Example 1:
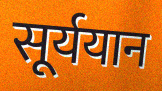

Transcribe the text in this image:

सूर्ययान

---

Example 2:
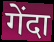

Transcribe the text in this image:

गेंदा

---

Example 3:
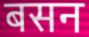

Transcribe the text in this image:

बसन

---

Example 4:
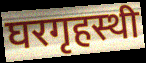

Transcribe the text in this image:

घरगृहस्थी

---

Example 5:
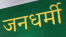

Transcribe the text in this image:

जनधर्मी